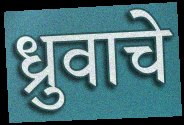
ध्रुवाचे